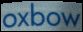
oxbow